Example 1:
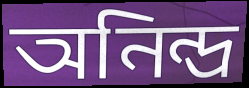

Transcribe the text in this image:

অনিন্দ্র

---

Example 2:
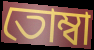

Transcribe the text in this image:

তোম্বা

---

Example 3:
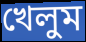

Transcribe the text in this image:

খেলুম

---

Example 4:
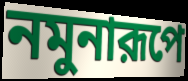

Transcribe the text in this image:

নমুনারূপে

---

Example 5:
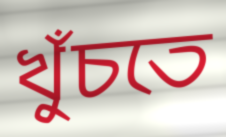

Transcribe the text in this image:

খুঁচতে